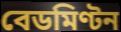
বেডমিণ্টন